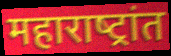
महाराष्ट्रांत